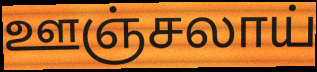
ஊஞ்சலாய்